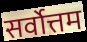
सर्वोत्तम